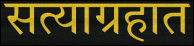
सत्याग्रहात